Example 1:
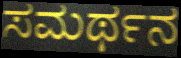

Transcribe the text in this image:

ಸಮರ್ಥನ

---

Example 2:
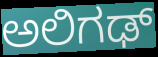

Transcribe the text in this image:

ಅಲಿಗಢ್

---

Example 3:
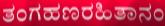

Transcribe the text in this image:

ತಂಗಹಣರಹಿತಾನಂ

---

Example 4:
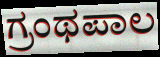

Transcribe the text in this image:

ಗ್ರಂಥಪಾಲ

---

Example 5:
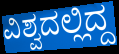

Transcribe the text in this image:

ವಿಶ್ವದಲ್ಲಿದ್ದ